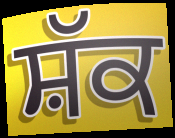
ਸ਼ੱਕ